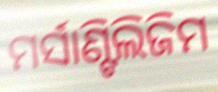
ମର୍ସାଣ୍ଟିଲିଜିମ